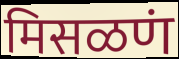
मिसळणं